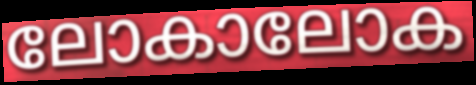
ലോകാലോക